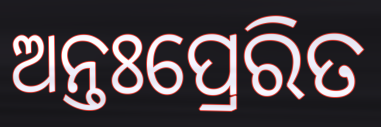
ଅନ୍ତଃପ୍ରେରିତ